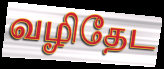
வழிதேட